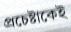
প্রচেষ্টাকেই